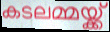
കടലമ്മയ്ക്ക്